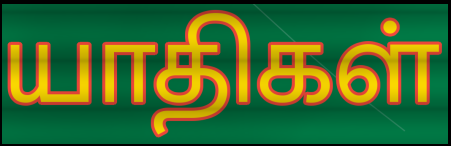
யாதிகள்